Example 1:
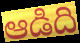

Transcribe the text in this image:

ఆడిది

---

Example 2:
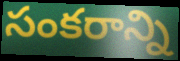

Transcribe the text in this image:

సంకరాన్ని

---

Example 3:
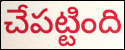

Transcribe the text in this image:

చేపట్టింది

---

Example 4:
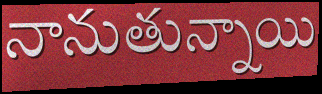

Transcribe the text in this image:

నానుతున్నాయి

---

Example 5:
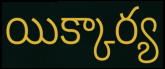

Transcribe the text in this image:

యిక్కార్య